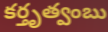
కర్తృత్వంబు